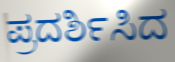
ಪ್ರದರ್ಶಿಸಿದ